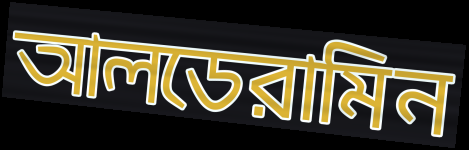
আলডেরামিন